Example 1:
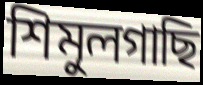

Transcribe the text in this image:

শিমুলগাছি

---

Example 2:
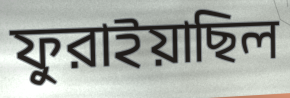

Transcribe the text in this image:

ফুরাইয়াছিল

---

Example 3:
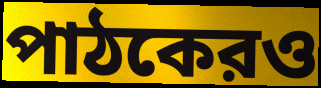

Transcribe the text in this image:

পাঠকেরও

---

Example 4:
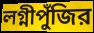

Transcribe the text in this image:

লগ্নীপুঁজির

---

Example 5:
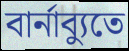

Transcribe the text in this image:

বার্নাব্যুতে